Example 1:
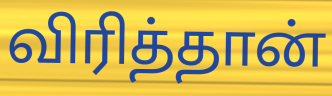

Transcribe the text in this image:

விரித்தான்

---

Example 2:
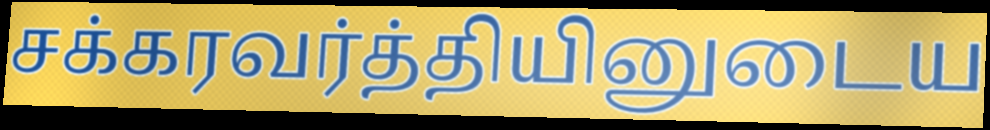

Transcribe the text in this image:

சக்கரவர்த்தியினுடைய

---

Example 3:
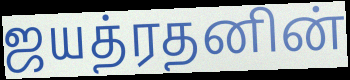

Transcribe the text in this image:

ஜயத்ரதனின்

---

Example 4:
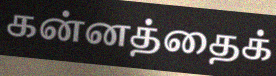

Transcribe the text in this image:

கன்னத்தைக்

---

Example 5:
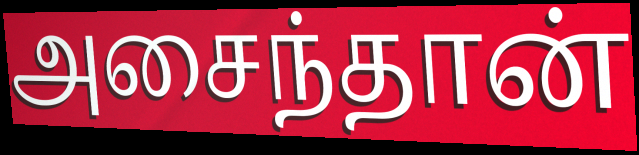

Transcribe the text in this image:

அசைந்தான்